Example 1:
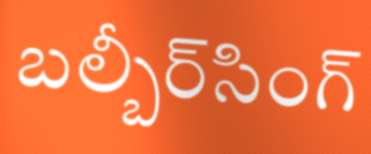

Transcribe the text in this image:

బల్బీర్‌సింగ్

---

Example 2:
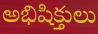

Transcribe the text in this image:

అభిషిక్తులు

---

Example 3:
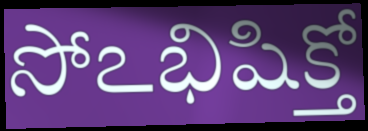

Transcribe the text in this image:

సోఽభిషిక్తో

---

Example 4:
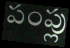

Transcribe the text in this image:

పంప్లు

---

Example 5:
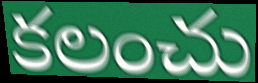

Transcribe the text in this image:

కలంచు